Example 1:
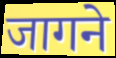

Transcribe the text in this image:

जागने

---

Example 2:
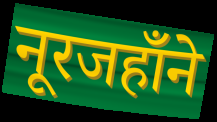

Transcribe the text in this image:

नूरजहाँने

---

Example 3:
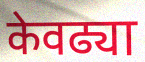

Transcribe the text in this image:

केवढ्या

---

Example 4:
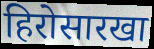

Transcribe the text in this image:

हिरोसारखा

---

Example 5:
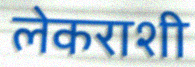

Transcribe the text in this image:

लेकराशी